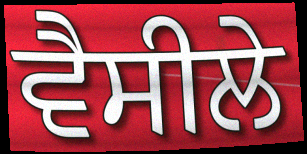
ਵੈਸੀਲੇ